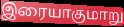
இரையாகுமாறு